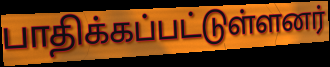
பாதிக்கப்பட்டுள்ளனர்